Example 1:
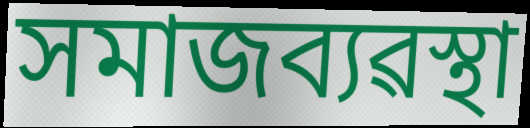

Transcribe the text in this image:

সমাজব্যৱস্থা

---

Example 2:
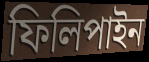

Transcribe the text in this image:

ফিলিপাইন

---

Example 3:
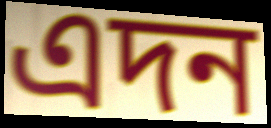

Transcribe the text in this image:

এদন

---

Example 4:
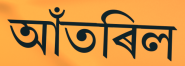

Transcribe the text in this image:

আঁতৰিল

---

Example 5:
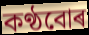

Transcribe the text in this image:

কণ্ঠবোৰ